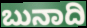
ಬುನಾದಿ